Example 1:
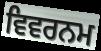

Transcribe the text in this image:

ਵਿਵਰਨਮ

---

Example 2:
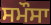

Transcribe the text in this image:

ਸਮੌਸਾ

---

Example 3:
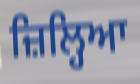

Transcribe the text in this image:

ਜ਼ਿਲ੍ਹਿਆ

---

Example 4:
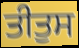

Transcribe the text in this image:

ਤੀਤੁਸ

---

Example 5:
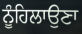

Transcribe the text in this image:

ਨੂੰਹਿਲਾਉਣਾ